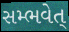
સમ્ભવેત્